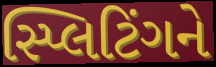
સ્પ્લિટિંગને